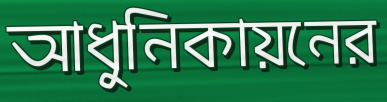
আধুনিকায়নের